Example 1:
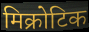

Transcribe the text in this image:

मिक्रोटिक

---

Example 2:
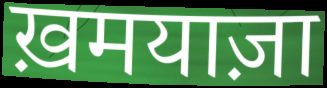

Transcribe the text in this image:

ख़मयाज़ा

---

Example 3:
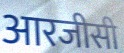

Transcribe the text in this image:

आरजीसी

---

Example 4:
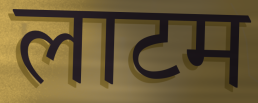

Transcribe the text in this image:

लाटम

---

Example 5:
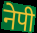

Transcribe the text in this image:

नेपी